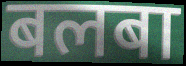
बलबा